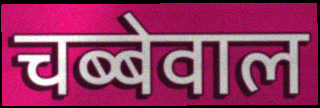
चब्बेवाल